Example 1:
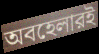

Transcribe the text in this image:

অবহেলারই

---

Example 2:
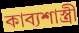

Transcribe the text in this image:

কাব্যশাস্ত্রী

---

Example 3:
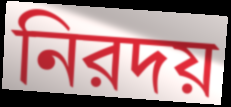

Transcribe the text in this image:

নিরদয়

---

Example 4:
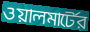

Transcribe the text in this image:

ওয়ালমার্টের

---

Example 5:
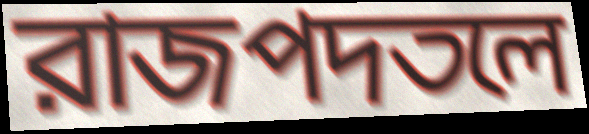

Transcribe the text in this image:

রাজপদতলে